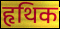
हृथिक